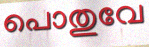
പൊതുവേ